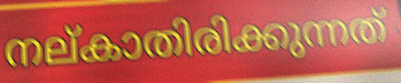
നല്കാതിരിക്കുന്നത്